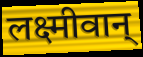
लक्ष्मीवान्